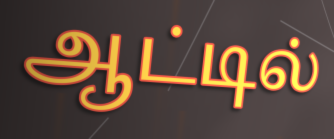
ஆட்டில்